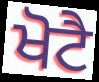
ਖੋਟੈ